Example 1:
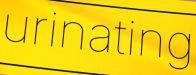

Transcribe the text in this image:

urinating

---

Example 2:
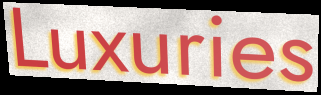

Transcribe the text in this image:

Luxuries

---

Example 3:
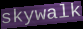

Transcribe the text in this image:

skywalk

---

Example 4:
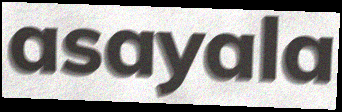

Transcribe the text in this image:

asayala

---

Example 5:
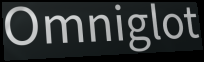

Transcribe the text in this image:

Omniglot